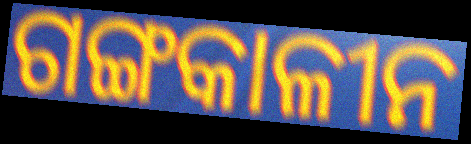
ଗଙ୍ଗକାଳୀନ